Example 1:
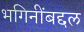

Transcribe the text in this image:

भगिनींबद्दल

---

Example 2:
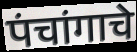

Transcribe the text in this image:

पंचांगाचे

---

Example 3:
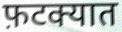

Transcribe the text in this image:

फ़टक्यात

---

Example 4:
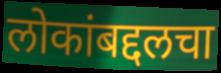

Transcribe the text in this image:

लोकांबद्दलचा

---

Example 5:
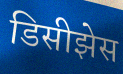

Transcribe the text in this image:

डिसीझेस